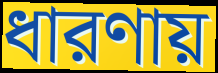
ধারণায়